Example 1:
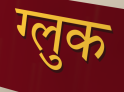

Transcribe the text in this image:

ग्लुक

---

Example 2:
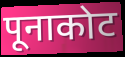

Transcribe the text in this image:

पूनाकोट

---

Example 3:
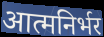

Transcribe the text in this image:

आत्मनिर्भर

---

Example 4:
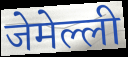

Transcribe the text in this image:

जेमेल्ली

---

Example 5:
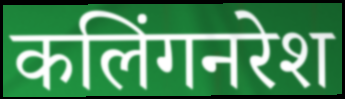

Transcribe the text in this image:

कलिंगनरेश